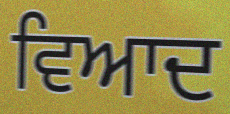
ਵਿਆਦ